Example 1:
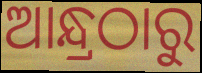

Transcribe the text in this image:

ଆନ୍ଧ୍ରଠାରୁ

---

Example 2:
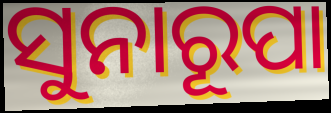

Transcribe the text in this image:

ସୁନାରୂପା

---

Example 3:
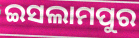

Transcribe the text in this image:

ଇସଲାମପୁର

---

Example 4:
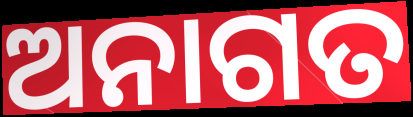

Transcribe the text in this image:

ଅନାଗତ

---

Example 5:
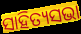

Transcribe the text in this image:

ସାହିତ୍ୟସଭା